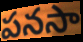
పనసా